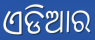
ଏଡିଆର